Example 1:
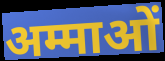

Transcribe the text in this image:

अम्माओं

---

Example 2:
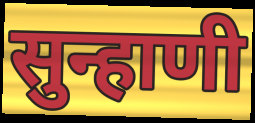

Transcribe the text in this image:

सुन्हाणी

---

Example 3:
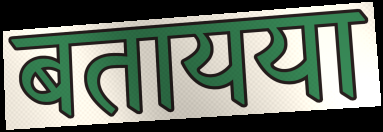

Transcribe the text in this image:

बतायया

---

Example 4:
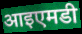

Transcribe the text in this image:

आइएमडी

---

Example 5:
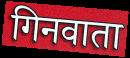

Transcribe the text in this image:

गिनवाता